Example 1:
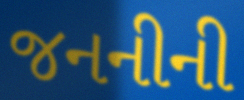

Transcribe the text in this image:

જનનીની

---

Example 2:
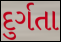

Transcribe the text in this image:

દુર્ગતા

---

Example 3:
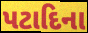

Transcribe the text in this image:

પટાદિના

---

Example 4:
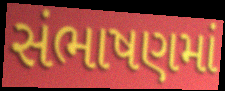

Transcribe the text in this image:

સંભાષણમાં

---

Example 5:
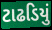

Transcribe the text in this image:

ટાઢડિયું